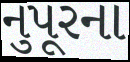
નુપૂરના